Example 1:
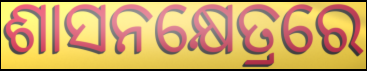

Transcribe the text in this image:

ଶାସନକ୍ଷେତ୍ରରେ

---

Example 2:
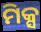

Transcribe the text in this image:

ମିକ୍ସ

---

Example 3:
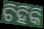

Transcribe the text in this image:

ଚିହିଁକି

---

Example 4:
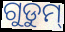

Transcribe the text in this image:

ଗୁଡୁମ୍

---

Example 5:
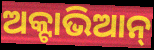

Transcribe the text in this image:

ଅକ୍ଟାଭିଆନ୍